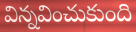
విన్నవించుకుంది